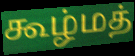
கூழ்மத்